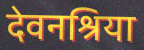
देवनश्रिया